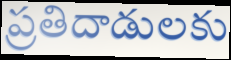
ప్రతిదాడులకు